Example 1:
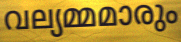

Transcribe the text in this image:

വല്യമ്മമാരും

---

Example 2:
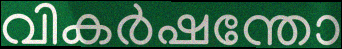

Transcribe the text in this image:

വികർഷന്തോ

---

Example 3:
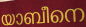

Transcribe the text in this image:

യാബീനെ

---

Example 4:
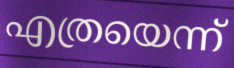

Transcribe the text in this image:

എത്രയെന്ന്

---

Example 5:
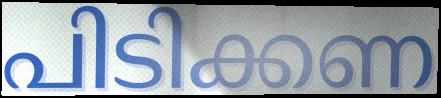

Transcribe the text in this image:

പിടിക്കണ